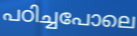
പഠിച്ചപോലെ